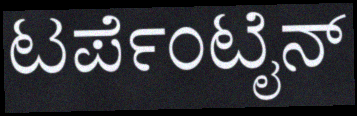
ಟರ್ಪೆಂಟೈನ್